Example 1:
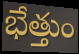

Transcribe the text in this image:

భేత్తుం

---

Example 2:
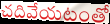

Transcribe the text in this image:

చదివేయటంతో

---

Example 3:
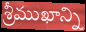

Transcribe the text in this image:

శ్రీముఖాన్ని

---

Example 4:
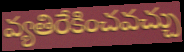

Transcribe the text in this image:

వ్యతిరేకించవచ్చు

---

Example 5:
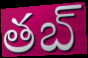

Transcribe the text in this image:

తబ్